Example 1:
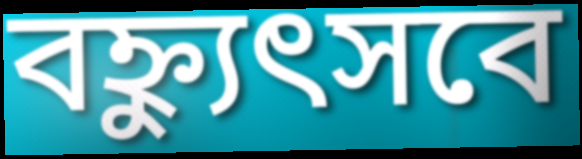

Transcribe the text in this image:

বহ্ন্যুৎসবে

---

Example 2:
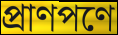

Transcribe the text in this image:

প্রাণপণে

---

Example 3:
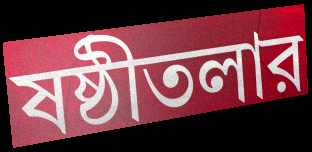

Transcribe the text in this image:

ষষ্ঠীতলার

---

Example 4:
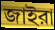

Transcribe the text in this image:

জাইরা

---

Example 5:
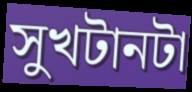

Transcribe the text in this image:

সুখটানটা